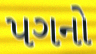
પગનો